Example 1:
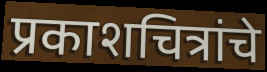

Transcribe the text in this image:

प्रकाशचित्रांचे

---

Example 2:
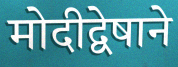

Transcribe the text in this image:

मोदीद्वेषाने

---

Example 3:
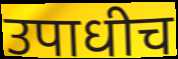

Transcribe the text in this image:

उपाधीच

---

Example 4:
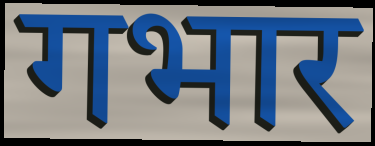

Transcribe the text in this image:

गभार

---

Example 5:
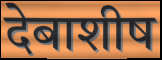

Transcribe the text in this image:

देबाशीष